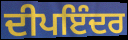
ਦੀਪਇੰਦਰ